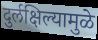
दुर्लक्षिल्यामुळे